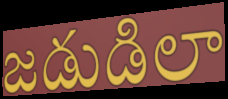
జడుడిలా